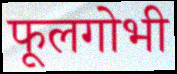
फूलगोभी